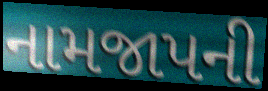
નામજાપની